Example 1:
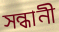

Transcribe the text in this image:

সন্ধানী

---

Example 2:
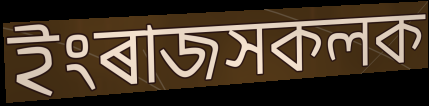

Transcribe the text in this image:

ইংৰাজসকলক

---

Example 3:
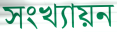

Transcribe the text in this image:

সংখ্যায়ন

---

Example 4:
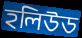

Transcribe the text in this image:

হলিউড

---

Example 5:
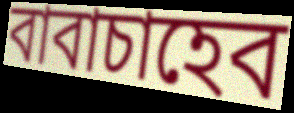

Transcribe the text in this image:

বাবাচাহেব